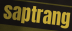
saptrang